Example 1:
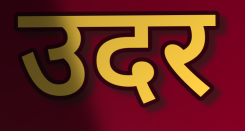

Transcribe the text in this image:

उदर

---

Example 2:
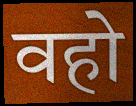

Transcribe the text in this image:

वहो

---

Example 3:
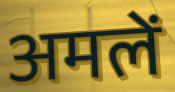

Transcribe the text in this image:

अमलें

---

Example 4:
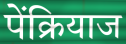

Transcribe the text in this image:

पेंक्रियाज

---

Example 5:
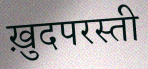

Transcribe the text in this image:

ख़ुदपरस्ती